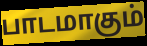
பாடமாகும்